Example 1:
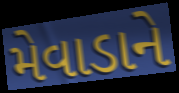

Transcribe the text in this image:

મેવાડાને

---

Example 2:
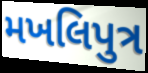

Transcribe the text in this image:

મખલિપુત્ર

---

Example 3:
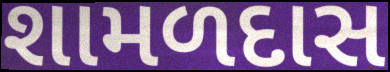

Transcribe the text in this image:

શામળદાસ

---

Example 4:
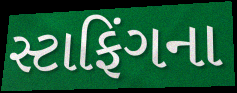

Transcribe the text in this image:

સ્ટાફિંગના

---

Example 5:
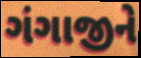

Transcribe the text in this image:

ગંગાજીને